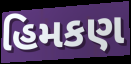
હિમકણ